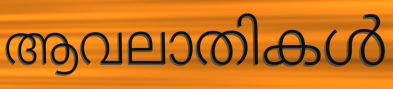
ആവലാതികൾ